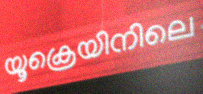
യൂക്രെയിനിലെ